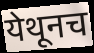
येथूनच